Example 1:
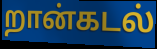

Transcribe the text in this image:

றான்கடல்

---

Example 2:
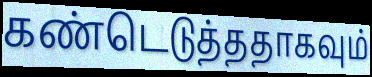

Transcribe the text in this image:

கண்டெடுத்ததாகவும்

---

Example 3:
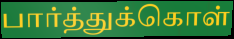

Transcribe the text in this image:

பார்த்துக்கொள்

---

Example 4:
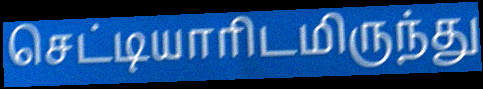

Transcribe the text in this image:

செட்டியாரிடமிருந்து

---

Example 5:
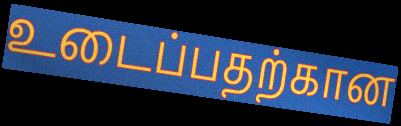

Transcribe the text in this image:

உடைப்பதற்கான